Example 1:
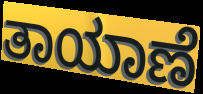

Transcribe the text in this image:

ತಾಯಾಣೆ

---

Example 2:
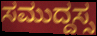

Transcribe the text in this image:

ಸಮುದ್ದಸ್ಸ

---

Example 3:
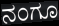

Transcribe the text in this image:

ನಂಗೂ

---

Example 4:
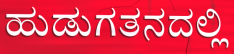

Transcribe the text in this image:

ಹುಡುಗತನದಲ್ಲಿ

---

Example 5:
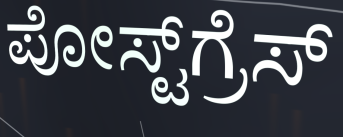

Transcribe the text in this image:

ಪೋಸ್ಟ್‌ಗ್ರೆಸ್